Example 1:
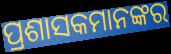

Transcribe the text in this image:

ପ୍ରଶାସକମାନଙ୍କର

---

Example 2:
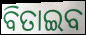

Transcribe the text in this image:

ବିତାଇବ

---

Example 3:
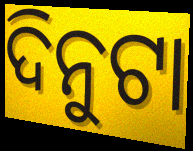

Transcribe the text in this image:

ଦିନୁଟା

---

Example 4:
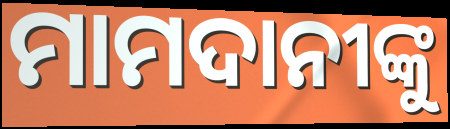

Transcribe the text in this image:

ମାମଦାନୀଙ୍କୁ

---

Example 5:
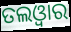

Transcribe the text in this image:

ତଲଓ୍ୱାର